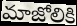
మాజోలికి